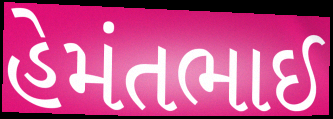
હેમંતભાઈ